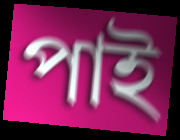
পাই